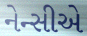
નેન્સીએ